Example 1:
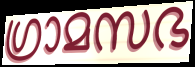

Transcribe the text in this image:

ഗ്രാമസഭ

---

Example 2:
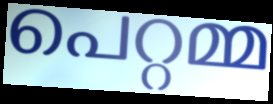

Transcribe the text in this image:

പെറ്റമ്മ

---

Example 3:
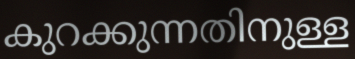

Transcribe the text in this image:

കുറക്കുന്നതിനുള്ള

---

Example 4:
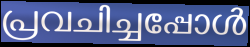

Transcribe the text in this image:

പ്രവചിച്ചപ്പോൾ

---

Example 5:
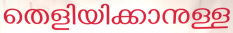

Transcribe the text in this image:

തെളിയിക്കാനുള്ള